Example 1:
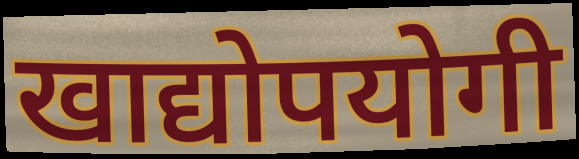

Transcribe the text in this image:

खाद्योपयोगी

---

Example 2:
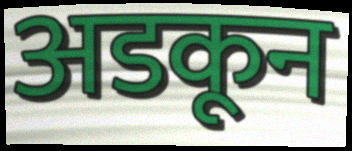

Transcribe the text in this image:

अडकून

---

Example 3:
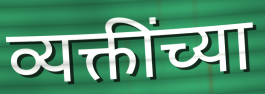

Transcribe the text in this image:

व्यक्तींच्या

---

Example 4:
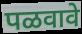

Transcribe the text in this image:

पळवावे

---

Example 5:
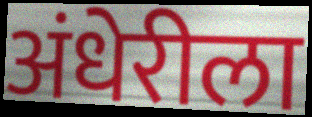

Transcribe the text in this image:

अंधेरीला